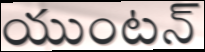
యుంటన్